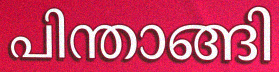
പിന്താങ്ങി